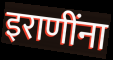
इराणींना